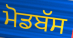
ਮੋਡਬੱਸ